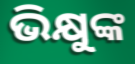
ଭିକ୍ଷୁଙ୍କ